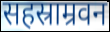
सहस्राम्रवन